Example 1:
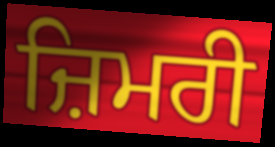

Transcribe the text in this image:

ਜ਼ਿਮਰੀ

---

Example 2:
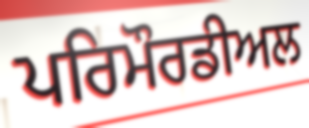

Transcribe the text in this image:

ਪਰਿਮੌਰਡੀਅਲ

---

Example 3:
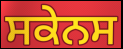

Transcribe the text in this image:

ਸਕੇਨਸ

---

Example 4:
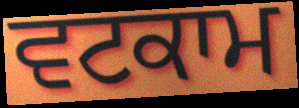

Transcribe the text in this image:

ਵਟਕਾਮ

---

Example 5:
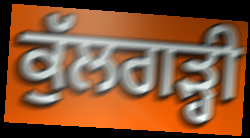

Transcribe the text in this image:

ਕੁੱਲਗੜ੍ਹੀ